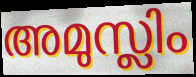
അമുസ്ലിം